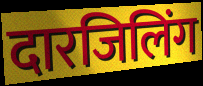
दारजिलिंग